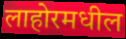
लाहोरमधील